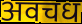
अवचध